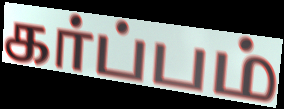
கர்ப்பம்